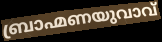
ബ്രാഹ്മണയുവാവ്